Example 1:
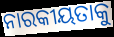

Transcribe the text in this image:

ନାରକୀୟତାକୁ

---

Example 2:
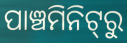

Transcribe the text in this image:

ପାଞ୍ଚମିନିଟ୍‌ରୁ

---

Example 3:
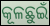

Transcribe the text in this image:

କୂଳଛୁଇଁ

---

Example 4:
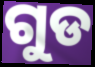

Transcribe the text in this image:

ଗୁଡ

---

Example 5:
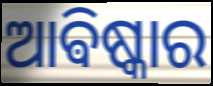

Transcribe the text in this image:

ଆଵିଷ୍କାର